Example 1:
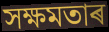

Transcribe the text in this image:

সক্ষমতাৰ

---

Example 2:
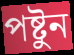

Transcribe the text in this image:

পষ্টুন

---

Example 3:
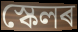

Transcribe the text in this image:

স্কেলৰ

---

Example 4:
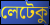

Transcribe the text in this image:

লেটেকু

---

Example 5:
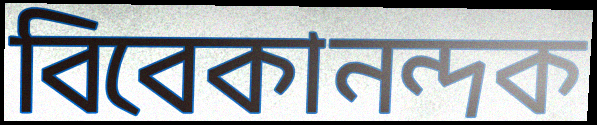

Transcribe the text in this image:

বিবেকানন্দক